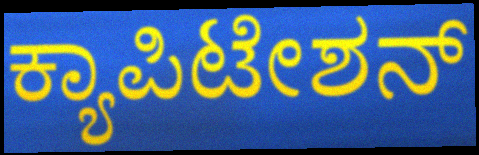
ಕ್ಯಾಪಿಟೇಶನ್